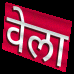
वेला